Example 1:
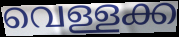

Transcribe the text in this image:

വെള്ളക്ക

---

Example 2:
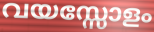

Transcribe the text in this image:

വയസ്സോളം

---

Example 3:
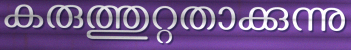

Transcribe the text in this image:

കരുത്തുറ്റതാക്കുന്നു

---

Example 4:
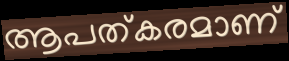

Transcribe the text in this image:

ആപത്കരമാണ്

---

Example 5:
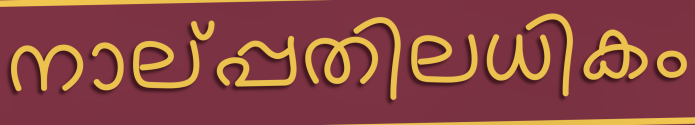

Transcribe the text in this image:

നാല്പ്പതിലധികം